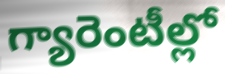
గ్యారెంటీల్లో